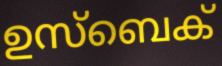
ഉസ്ബെക്